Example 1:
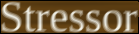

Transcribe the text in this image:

Stressor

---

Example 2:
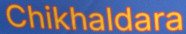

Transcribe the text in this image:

Chikhaldara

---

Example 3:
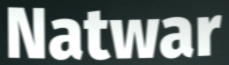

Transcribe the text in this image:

Natwar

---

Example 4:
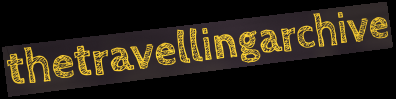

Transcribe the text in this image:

thetravellingarchive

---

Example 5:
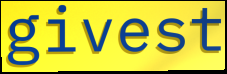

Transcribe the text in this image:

givest